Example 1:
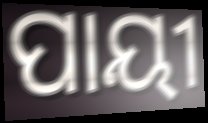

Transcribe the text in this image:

ପାୟୀ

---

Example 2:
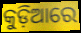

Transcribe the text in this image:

କୁଡ଼ିଆରେ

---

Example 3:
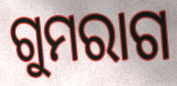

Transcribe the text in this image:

ଗୁମରାଗ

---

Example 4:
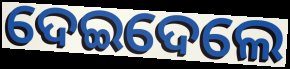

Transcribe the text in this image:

ଦେଇଦେଲେ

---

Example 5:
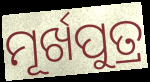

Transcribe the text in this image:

ମୂର୍ଖପୁତ୍ର